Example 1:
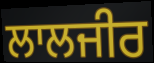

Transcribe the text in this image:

ਲਾਲਜੀਰ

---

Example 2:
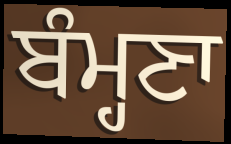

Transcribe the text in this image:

ਬੰਮ੍ਹਣਾ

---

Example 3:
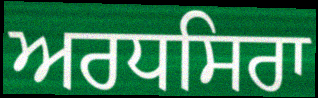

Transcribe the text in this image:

ਅਰਧਸਿਰਾ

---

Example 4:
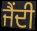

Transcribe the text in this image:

ਜੈਂਦੀ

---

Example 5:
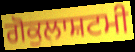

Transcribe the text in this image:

ਗੋਕੁਲਾਸ਼ਟਮੀ